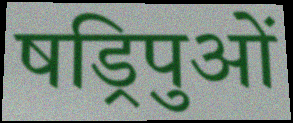
षड्रिपुओं